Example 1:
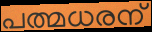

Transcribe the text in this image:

പത്മധരന്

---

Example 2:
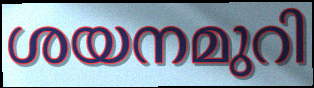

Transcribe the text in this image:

ശയനമുറി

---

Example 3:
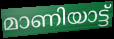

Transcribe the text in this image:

മാണിയാട്ട്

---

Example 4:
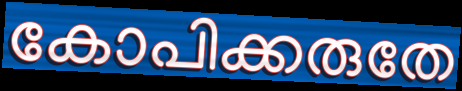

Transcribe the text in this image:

കോപിക്കരുതേ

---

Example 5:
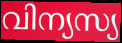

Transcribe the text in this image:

വിന്യസ്യ